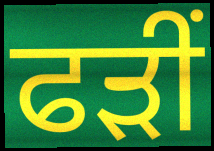
ਫੜੀਂ